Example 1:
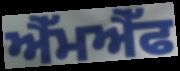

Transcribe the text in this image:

ਐੱਮਐੱਫ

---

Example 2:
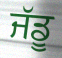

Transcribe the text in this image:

ਜੱਡੂ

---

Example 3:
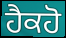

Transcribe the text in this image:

ਹੈਕਹੋ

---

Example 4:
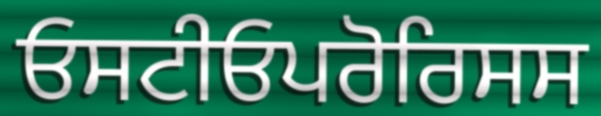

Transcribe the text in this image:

ਓਸਟੀਓਪਰੋਰਿਸਸ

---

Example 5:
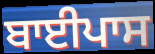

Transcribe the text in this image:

ਬਾਈਪਾਸ